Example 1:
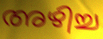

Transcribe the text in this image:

അഴിച്ച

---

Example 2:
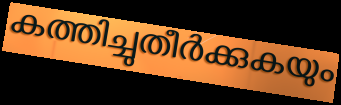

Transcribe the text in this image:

കത്തിച്ചുതീർക്കുകയും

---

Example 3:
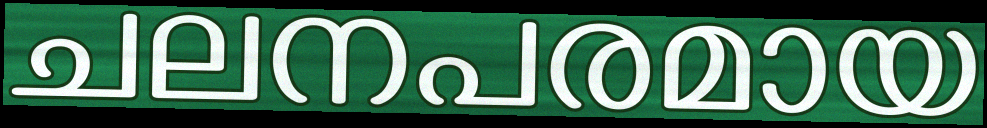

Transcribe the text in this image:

ചലനപരമായ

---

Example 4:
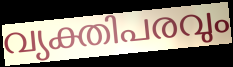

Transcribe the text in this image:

വ്യക്തിപരവും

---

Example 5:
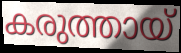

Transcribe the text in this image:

കരുത്തായ്